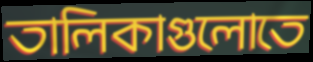
তালিকাগুলোতে